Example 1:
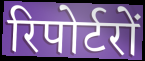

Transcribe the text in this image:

रिपोर्टरों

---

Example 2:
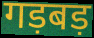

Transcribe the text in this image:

गड़बड़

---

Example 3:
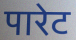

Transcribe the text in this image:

पारेट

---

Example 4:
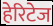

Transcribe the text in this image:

हेरिटेज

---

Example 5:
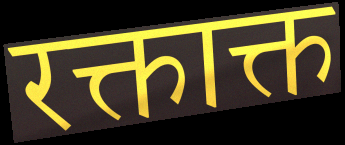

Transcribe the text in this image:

रक्ताक्त